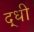
द्धी